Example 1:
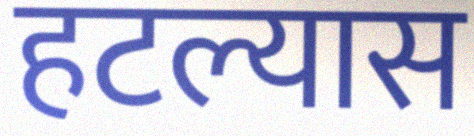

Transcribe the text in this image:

हटल्यास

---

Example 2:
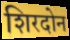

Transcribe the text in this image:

शिरदोन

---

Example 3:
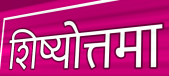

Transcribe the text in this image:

शिष्योत्तमा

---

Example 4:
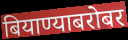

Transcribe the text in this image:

बियाण्याबरोबर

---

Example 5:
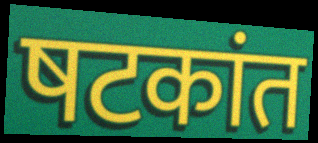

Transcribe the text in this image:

षटकांत